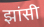
झांसी